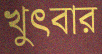
খুৎবার